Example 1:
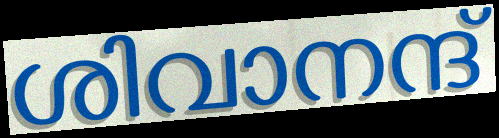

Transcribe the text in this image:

ശിവാനന്ദ്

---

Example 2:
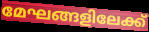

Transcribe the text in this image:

മേഘങ്ങളിലേക്ക്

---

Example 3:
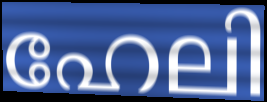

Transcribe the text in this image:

ഹേലി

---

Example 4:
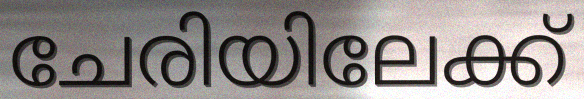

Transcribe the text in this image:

ചേരിയിലേക്ക്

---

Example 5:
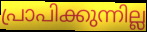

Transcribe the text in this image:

പ്രാപിക്കുന്നില്ല